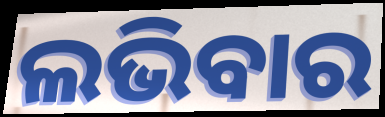
ଲଭିବାର